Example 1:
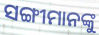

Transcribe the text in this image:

ସଙ୍ଗୀମାନଙ୍କୁ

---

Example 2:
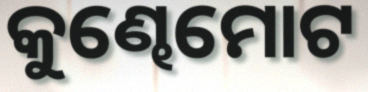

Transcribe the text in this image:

କୁଣ୍ଢେମୋଟ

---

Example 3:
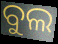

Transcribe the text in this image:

ବୁଲ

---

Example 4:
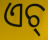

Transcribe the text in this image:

ଏଚ୍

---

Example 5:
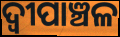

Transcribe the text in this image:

ଦ୍ୱୀପାଞ୍ଚଳ